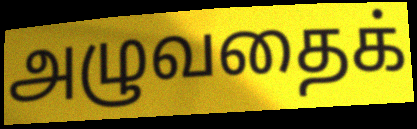
அழுவதைக்